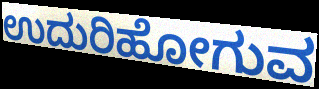
ಉದುರಿಹೋಗುವ